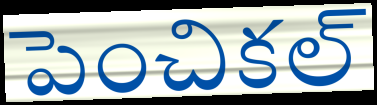
పెంచికల్